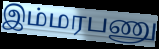
இம்மரபணு